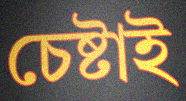
চেষ্টাই